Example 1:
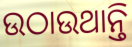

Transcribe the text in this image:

ଉଠାଉଥାନ୍ତି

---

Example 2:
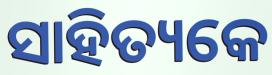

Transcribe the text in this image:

ସାହିତ୍ୟକେ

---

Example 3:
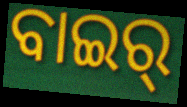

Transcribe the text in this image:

ବାଇର୍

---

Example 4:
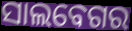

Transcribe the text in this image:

ସାଲବେଗର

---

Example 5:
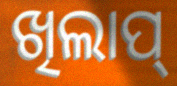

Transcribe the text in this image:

ଖିଲାପ୍